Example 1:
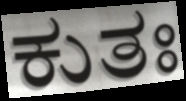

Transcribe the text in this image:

ಕುತಃ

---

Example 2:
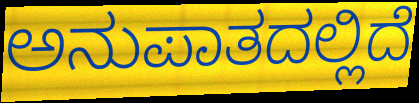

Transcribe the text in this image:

ಅನುಪಾತದಲ್ಲಿದೆ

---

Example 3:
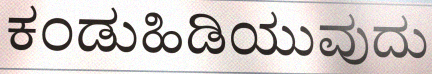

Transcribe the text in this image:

ಕಂಡುಹಿಡಿಯುವುದು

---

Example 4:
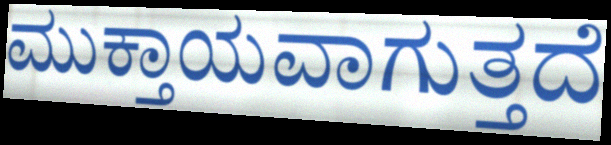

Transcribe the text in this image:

ಮುಕ್ತಾಯವಾಗುತ್ತದೆ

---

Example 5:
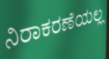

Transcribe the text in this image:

ನಿರಾಕರಣೆಯಲ್ಲ